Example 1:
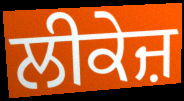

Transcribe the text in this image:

ਲੀਕੇਜ਼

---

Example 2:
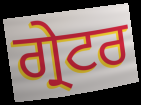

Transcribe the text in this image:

ਗ੍ਰੇਟਰ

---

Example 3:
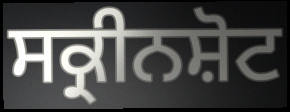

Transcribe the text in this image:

ਸਕ੍ਰੀਨਸ਼ੋਟ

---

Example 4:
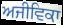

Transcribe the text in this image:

ਅਜੀਵਿਕਾ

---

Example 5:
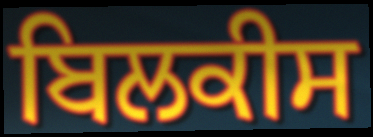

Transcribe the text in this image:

ਬਿਲਕੀਸ